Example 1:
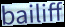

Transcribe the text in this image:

bailiff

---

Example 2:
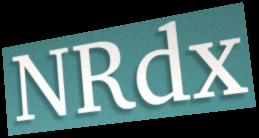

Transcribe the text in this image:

NRdx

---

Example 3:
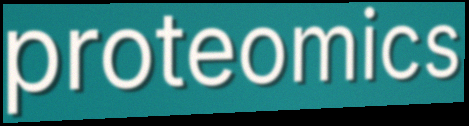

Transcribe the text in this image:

proteomics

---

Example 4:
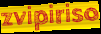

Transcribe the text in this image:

zvipiriso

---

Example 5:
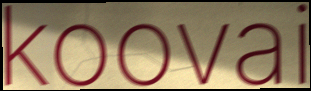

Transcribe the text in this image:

koovai